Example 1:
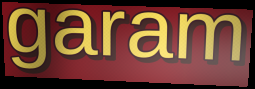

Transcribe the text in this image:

garam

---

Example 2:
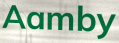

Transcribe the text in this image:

Aamby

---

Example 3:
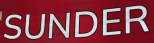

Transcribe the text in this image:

SUNDER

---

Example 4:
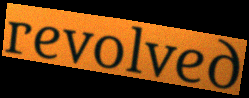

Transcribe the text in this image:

revolved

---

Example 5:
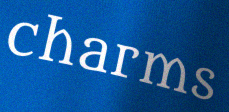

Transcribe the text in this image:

charms